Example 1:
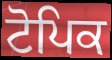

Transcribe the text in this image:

ਟੋਪਿਕ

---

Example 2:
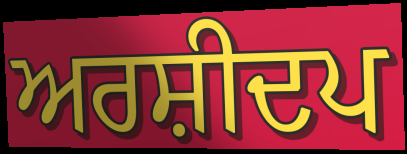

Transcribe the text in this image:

ਅਰਸ਼ੀਦਪ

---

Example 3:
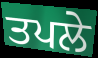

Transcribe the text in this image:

ਤਪਲੇ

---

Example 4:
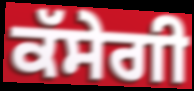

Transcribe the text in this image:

ਕੱਸੇਗੀ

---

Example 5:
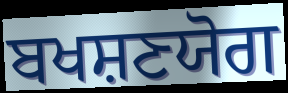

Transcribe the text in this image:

ਬਖਸ਼ਣਯੋਗ